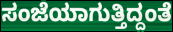
ಸಂಜೆಯಾಗುತ್ತಿದ್ದಂತೆ